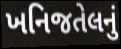
ખનિજતેલનું